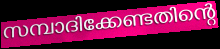
സമ്പാദിക്കേണ്ടതിന്റെ